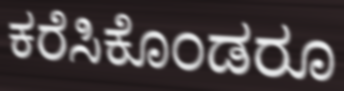
ಕರೆಸಿಕೊಂಡರೂ